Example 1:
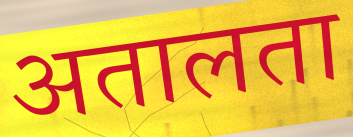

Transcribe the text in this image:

अतालता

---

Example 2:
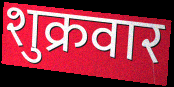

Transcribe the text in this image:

शुक्रवार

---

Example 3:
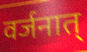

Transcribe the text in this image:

वर्जनात्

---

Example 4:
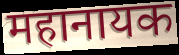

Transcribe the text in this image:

महानायक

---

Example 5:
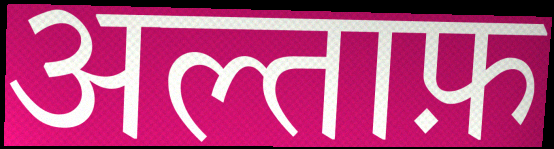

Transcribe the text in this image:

अल्ताफ़